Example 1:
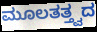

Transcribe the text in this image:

ಮೂಲತತ್ತ್ವದ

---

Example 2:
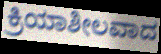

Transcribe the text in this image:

ಕ್ರಿಯಾಶೀಲವಾದ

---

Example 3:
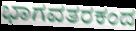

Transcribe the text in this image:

ಭಾಗವತರಕಂದ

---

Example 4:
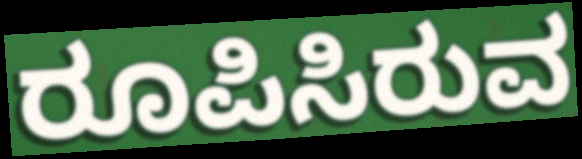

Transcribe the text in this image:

ರೂಪಿಸಿರುವ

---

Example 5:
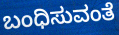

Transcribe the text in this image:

ಬಂಧಿಸುವಂತೆ